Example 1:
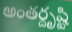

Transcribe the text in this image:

అంతర్దృష్టి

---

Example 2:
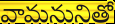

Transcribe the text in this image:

వామనునితో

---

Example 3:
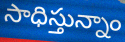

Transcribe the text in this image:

సాధిస్తున్నాం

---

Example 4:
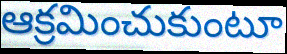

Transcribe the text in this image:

ఆక్రమించుకుంటూ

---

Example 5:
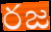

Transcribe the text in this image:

రజ